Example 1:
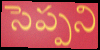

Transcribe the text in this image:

సెప్పని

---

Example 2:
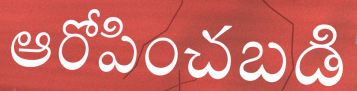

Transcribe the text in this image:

ఆరోపించబడి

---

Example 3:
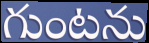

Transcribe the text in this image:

గుంటను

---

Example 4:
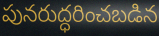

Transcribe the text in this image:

పునరుద్ధరించబడిన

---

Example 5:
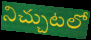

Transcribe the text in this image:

నిచ్చుటలో